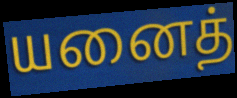
யனைத்